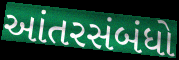
આંતરસંબંધો